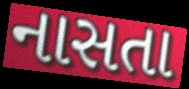
નાસતા